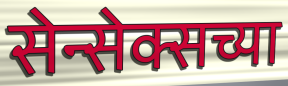
सेन्सेक्सच्या